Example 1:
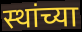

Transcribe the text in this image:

स्थांच्या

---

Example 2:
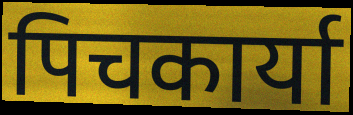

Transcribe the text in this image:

पिचकार्या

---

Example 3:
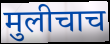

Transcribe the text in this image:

मुलीचाच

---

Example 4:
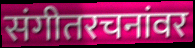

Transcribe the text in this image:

संगीतरचनांवर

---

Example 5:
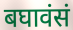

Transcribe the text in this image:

बघावंसं